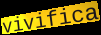
vivifica